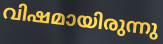
വിഷമായിരുന്നു